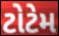
ટોટેમ